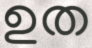
ഉത